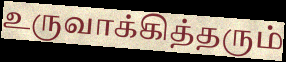
உருவாக்கித்தரும்